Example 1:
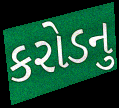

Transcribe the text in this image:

કરોડનુ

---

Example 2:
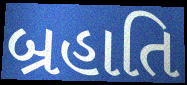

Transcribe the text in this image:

બ્રહાતિ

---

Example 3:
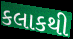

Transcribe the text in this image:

કલાકથી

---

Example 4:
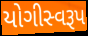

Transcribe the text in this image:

યોગીસ્વરૂપ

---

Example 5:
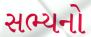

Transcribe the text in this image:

સભ્યનો